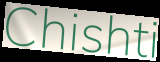
Chishti